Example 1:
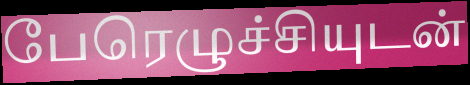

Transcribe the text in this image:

பேரெழுச்சியுடன்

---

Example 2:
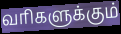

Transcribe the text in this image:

வரிகளுக்கும்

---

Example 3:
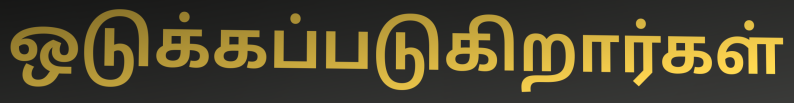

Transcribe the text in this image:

ஒடுக்கப்படுகிறார்கள்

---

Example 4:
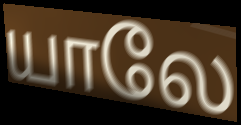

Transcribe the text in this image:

யாலே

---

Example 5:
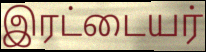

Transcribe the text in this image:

இரட்டையர்